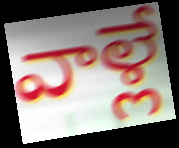
వాళ్లే